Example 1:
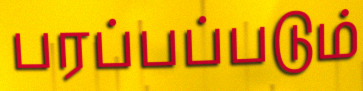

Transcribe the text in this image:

பரப்பப்படும்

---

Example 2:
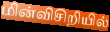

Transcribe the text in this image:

மின்விசிறியில்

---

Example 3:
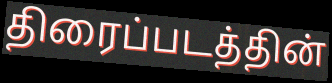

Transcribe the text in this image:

திரைப்படத்தின்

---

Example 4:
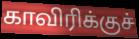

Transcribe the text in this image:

காவிரிக்குச்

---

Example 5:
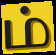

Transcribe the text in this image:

ம்